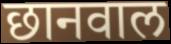
छानवाल